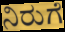
ನಿರುಗೆ